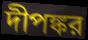
দীপঙ্কর